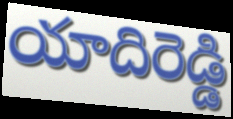
యాదిరెడ్డి